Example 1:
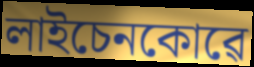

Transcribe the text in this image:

লাইচেনকোৱে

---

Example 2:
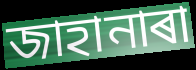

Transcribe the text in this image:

জাহানাৰা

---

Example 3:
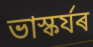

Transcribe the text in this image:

ভাস্কৰ্যৰ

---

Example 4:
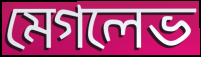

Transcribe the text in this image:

মেগলেভ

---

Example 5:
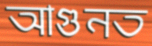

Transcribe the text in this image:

আগুনত